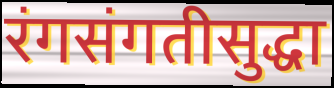
रंगसंगतीसुद्धा